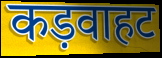
कड़वाहट